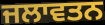
ਜਲਾਵਤਨ